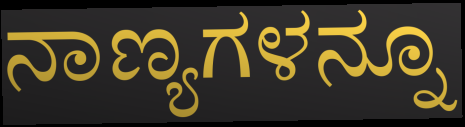
ನಾಣ್ಯಗಳನ್ನೂ